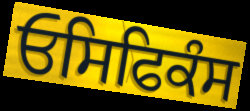
ਓਸਿਫਿਕੰਸ